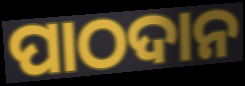
ପାଠଦାନ